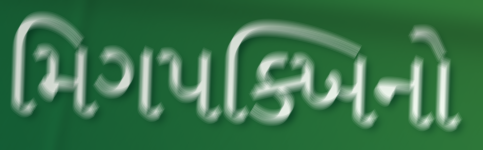
મિગપક્ખિનો